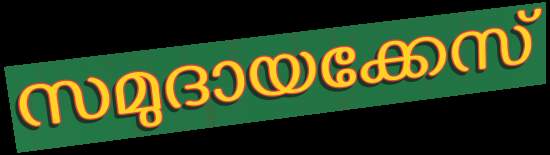
സമുദായക്കേസ്